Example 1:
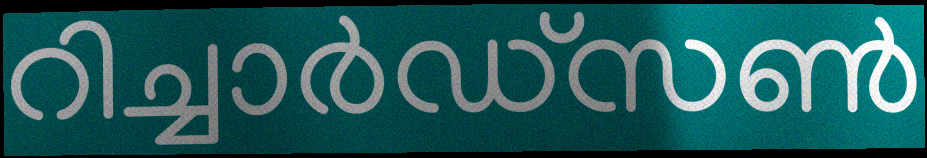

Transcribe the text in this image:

റിച്ചാർഡ്സൺ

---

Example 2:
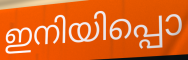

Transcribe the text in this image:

ഇനിയിപ്പൊ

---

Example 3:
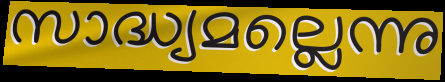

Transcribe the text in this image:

സാദ്ധ്യമല്ലെന്നു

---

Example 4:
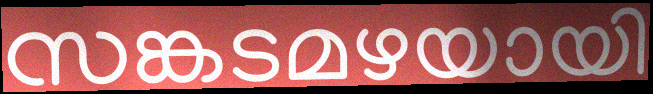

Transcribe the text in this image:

സങ്കടമഴയായി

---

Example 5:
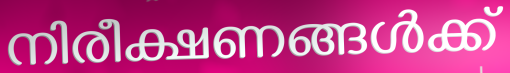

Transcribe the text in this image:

നിരീക്ഷണങ്ങൾക്ക്